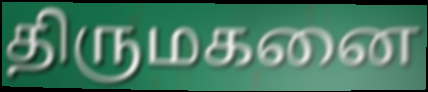
திருமகனை